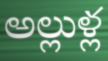
అల్లుళ్ల